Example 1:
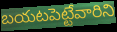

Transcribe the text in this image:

బయటపెట్టేవారిని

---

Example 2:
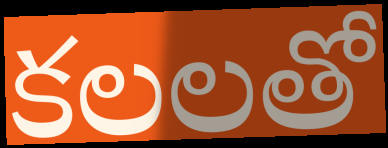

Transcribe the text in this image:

కలలతో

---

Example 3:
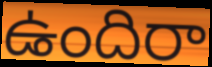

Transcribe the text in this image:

ఉందిరా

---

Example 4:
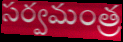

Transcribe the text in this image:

సర్వమంత్ర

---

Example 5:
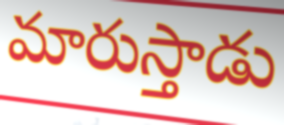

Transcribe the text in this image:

మారుస్తాడు